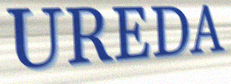
UREDA